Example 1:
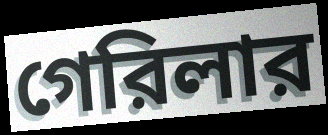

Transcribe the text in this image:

গেরিলার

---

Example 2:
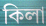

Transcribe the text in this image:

কিলা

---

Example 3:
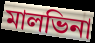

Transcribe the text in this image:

মালভিনা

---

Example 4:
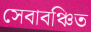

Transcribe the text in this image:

সেবাবঞ্চিত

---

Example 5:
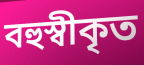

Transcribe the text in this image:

বহুস্বীকৃত